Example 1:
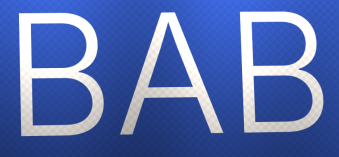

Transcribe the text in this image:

BAB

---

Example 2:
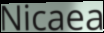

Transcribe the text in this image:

Nicaea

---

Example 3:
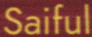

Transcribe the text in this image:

Saiful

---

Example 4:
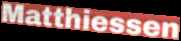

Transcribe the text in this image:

Matthiessen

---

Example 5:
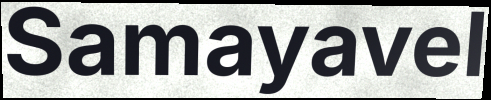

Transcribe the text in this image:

Samayavel